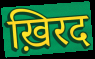
ख़िरद